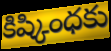
కిష్కింధకు